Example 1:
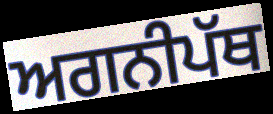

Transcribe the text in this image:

ਅਗਨੀਪੱਥ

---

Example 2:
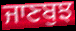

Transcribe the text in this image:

ਜਾਣਬੁਝ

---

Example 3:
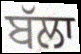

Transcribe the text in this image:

ਬੱਲਾ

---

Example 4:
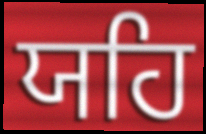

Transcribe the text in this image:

ਯਹਿ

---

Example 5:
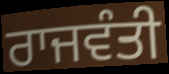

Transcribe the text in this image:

ਰਾਜਵੰਤੀ